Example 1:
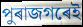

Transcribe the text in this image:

পুৰাজগৰেই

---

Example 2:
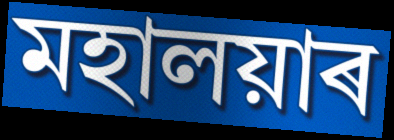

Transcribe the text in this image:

মহালয়াৰ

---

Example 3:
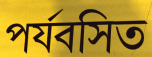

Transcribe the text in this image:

পৰ্যবসিত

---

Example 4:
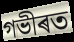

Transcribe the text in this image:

গভীৰত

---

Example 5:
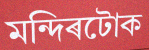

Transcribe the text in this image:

মন্দিৰটোক